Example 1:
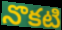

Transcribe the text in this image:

నొకటి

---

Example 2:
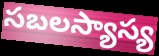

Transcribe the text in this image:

సబలస్యాస్య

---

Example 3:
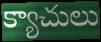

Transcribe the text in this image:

క్యాచులు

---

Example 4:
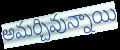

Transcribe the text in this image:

అమర్చివున్నాయి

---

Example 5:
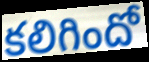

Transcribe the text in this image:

కలిగిందో